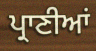
ਪ੍ਰਾਣੀਆਂ